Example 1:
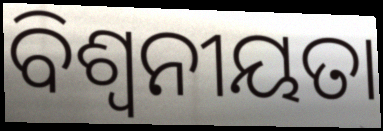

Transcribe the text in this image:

ବିଶ୍ୱନୀୟତା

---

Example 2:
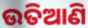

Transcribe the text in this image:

ଉତିଆଣି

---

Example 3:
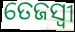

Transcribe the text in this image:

ତେଜସ୍ବୀ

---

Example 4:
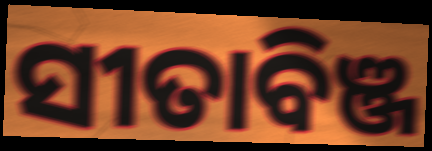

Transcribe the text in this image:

ସୀତାବିଞ୍ଜ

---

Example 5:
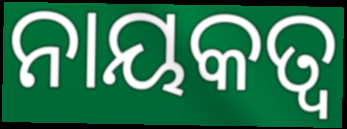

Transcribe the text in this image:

ନାୟକତ୍ୱ